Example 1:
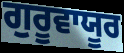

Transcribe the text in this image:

ਗੁਰੂਵਾਯੂਰ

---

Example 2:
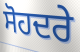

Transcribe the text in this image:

ਸੋਹਦਰੇ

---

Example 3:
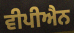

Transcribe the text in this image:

ਵੀਪੀਐਨ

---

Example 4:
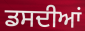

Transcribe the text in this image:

ਡਸਦੀਆਂ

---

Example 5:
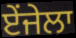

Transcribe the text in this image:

ਏਂਜੇਲਾ